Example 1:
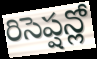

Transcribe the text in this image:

రిసెప్షన్లో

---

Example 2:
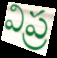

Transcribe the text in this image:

విప్ర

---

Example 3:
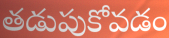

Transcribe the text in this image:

తడుపుకోవడం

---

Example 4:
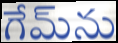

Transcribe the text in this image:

గేమ్‌ను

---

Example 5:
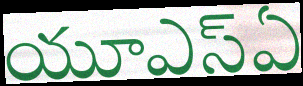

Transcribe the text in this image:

యూఎస్ఏ